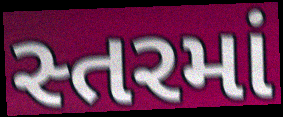
સ્તરમાં